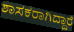
ಶಾಸಕರಾಗಿದ್ದಾರೆ